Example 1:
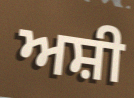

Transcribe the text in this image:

ਅਸ਼ੀ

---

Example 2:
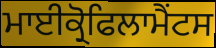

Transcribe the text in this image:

ਮਾਈਕ੍ਰੋਫਿਲਾਮੈਂਟਸ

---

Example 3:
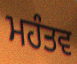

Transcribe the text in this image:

ਮਹੰਤਵ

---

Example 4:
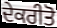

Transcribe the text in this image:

ਦੇਕਰੀਤੋ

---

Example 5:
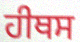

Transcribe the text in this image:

ਹੀਥਸ